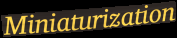
Miniaturization